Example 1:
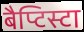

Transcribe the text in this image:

बैप्टिस्टा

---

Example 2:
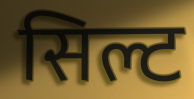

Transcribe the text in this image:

सिल्ट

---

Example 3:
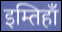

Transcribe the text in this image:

इम्तिहाँ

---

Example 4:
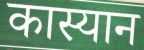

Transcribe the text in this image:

कास्यान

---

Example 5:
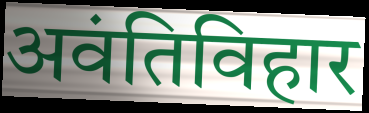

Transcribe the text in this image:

अवंतिविहार